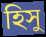
হিসু